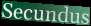
Secundus